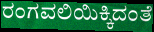
ರಂಗವಲಿಯಿಕ್ಕಿದಂತೆ